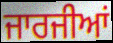
ਜਾਰਜੀਆਂ